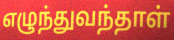
எழுந்துவந்தாள்